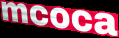
mcoca